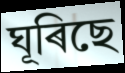
ঘূৰিছে